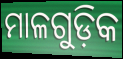
ମାଳଗୁଡ଼ିକ